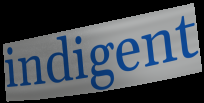
indigent